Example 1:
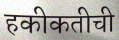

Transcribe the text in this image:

हकीकतीची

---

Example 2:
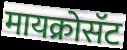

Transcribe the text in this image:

मायक्रोसॅट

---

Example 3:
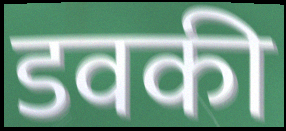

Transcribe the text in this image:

डवकी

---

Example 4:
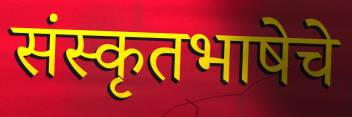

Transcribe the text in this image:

संस्कृतभाषेचे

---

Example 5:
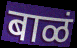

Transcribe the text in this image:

बाळं